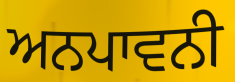
ਅਨਪਾਵਨੀ